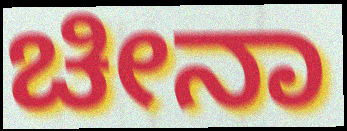
ಚೀನಾ